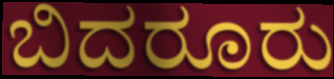
ಬಿದರೂರು